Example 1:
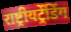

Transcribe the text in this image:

राष्ट्रीयट्रेंडिंग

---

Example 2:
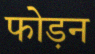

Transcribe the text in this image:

फोड़न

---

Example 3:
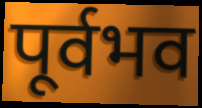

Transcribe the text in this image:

पूर्वभव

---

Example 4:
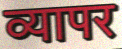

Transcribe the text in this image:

व्यापर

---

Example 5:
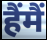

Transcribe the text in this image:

हैंमैं